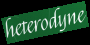
heterodyne